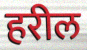
हरील